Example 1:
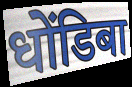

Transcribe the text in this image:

धोंडिबा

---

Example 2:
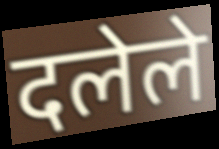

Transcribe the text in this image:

दलेले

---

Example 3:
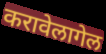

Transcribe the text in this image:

करावेलागेल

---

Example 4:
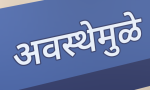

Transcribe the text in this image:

अवस्थेमुळे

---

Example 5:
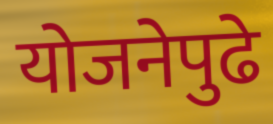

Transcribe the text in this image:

योजनेपुढे